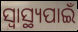
ସ୍ବାସ୍ଥ୍ୟପାଇଁ